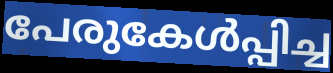
പേരുകേൾപ്പിച്ച